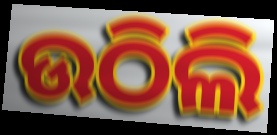
ଉଠିଲି